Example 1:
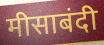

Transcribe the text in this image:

मीसाबंदी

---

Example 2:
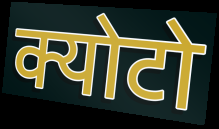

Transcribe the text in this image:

क्योटो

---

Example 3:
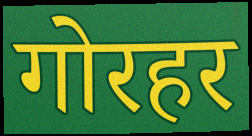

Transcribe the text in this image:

गोरहर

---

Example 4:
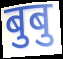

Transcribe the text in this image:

बुबु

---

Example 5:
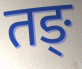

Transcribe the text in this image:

तङ्